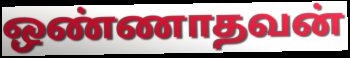
ஒண்ணாதவன்